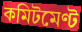
কমিটমেণ্ট